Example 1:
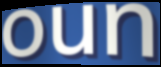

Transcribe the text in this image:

oun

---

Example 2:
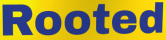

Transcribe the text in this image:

Rooted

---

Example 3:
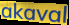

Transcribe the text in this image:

akaval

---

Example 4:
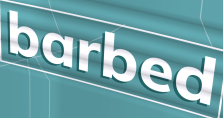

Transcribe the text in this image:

barbed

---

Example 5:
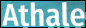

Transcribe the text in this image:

Athale